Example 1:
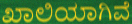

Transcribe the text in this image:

ಖಾಲಿಯಾಗಿವೆ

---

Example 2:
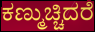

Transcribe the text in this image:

ಕಣ್ಮುಚ್ಚಿದರೆ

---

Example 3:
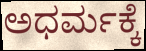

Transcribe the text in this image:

ಅಧರ್ಮಕ್ಕೆ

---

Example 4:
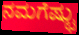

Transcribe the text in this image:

ನಮಗೆಷ್ಟು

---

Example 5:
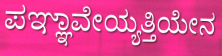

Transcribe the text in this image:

ಪಞ್ಞಾವೇಯ್ಯತ್ತಿಯೇನ